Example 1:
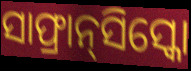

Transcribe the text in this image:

ସାଫ୍ରାନ୍‌ସିସ୍କୋ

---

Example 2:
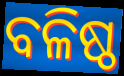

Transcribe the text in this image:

ବଳିଷ୍ଠ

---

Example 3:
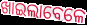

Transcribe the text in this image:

ଖାଇଲାବେଳେ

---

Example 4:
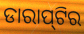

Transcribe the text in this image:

ଡାରାପ୍‌ଟିର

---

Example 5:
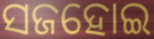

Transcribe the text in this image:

ସଜହୋଇ